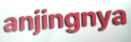
anjingnya